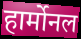
हार्मोनल